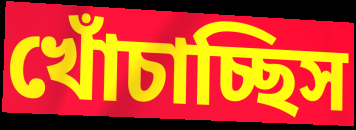
খোঁচাচ্ছিস